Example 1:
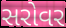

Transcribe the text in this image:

સરોવર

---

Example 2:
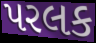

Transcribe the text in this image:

પરલક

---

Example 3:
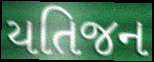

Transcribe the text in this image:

યતિજન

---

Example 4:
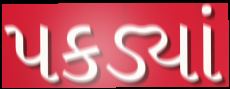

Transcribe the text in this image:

પકડ્યાં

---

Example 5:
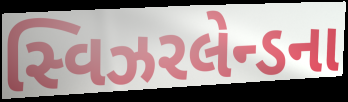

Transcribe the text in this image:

સ્વિઝરલેન્ડના